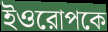
ইওরোপকে